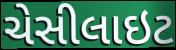
ચેસીલાઇટ